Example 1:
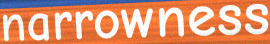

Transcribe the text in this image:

narrowness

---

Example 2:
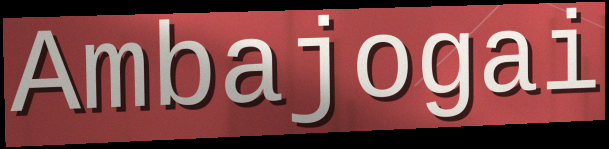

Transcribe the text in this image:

Ambajogai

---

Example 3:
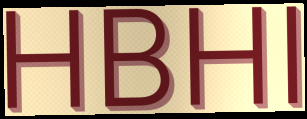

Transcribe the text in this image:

HBHI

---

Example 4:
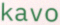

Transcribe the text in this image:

kavo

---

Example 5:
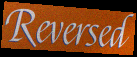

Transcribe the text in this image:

Reversed